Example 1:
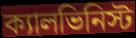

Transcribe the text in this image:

ক্যালভিনিস্ট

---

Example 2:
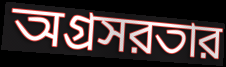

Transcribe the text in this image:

অগ্রসরতার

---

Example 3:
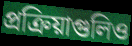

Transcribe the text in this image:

প্রক্রিয়াগুলিও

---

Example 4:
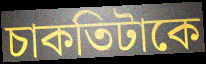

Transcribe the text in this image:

চাকতিটাকে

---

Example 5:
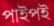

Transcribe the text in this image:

পাইপই